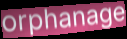
orphanage